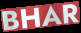
BHAR